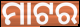
ମାଟର